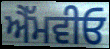
ਐੱਮਵੀਓ